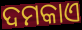
ଦମକାଏ